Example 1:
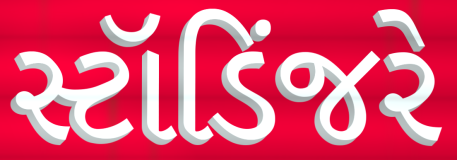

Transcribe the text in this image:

સ્ટૉડિંજરે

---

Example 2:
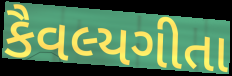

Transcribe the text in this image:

કૈવલ્યગીતા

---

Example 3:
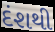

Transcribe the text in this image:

દંશથી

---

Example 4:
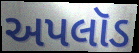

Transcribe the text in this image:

અપલૉડ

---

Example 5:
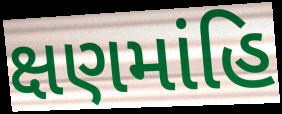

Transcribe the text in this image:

ક્ષણમાંહિ